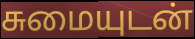
சுமையுடன்